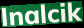
Inalcik